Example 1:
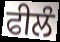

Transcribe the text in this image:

ਫੀਲੰ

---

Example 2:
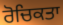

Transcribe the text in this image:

ਰੋਚਿਕਤਾ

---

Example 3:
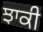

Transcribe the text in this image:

ਝਾਕੀ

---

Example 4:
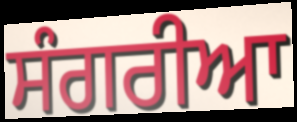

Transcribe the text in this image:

ਸੰਗਰੀਆ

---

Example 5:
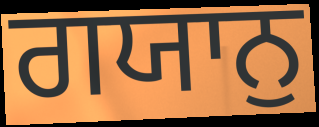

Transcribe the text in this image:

ਗਯਾਨੁ